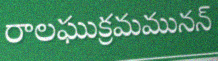
రాలఘుక్రమమునన్